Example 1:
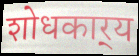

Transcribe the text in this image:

शोधकार्य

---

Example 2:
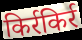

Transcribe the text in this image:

किर्रकिर्र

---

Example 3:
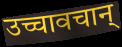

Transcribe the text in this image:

उच्चावचान्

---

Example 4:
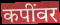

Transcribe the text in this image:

कपींवर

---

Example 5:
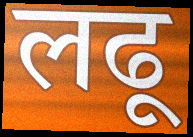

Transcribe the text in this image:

लढू